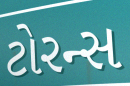
ટોરન્સ